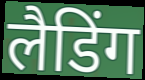
लैडिंग